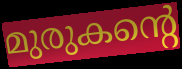
മുരുകന്റെ